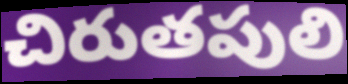
చిరుతపులి